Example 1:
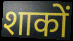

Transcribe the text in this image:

शाकों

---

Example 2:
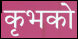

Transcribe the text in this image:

कृभको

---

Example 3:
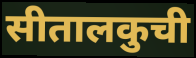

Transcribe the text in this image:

सीतालकुची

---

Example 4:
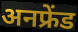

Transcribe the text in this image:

अनफ्रेंड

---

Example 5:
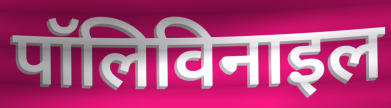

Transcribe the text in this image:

पॉलिविनाइल